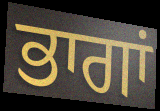
ਭਾਗਾਂ